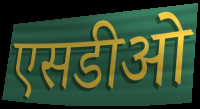
एसडीओ